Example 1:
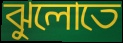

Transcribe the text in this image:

ঝুলোতে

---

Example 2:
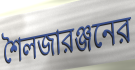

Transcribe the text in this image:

শৈলজারঞ্জনের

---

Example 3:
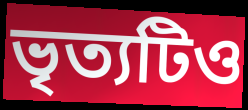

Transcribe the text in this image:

ভৃত্যটিও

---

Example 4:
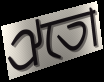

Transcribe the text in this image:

ঐতো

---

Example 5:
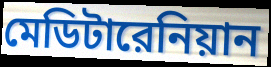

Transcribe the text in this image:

মেডিটারেনিয়ান